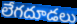
లేగదూడలు